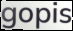
gopis